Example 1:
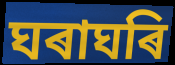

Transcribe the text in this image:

ঘৰাঘৰি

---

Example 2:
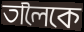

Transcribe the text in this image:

তালৈকে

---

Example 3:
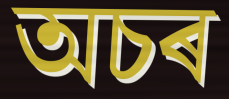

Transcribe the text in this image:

অচৰ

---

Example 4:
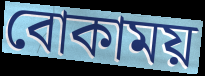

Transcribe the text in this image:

বোকাময়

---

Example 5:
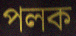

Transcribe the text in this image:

পলক